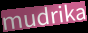
mudrika